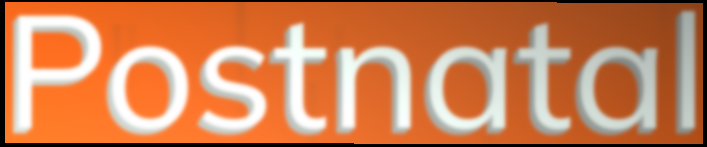
Postnatal